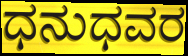
ಧನುಧವರ